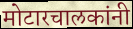
मोटारचालकांनी